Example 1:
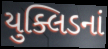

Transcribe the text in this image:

યુક્લિડનાં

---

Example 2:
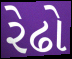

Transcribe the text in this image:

રેઢો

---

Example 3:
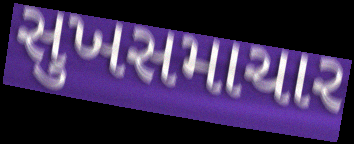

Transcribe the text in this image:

સુખસમાચાર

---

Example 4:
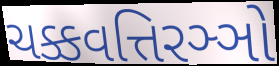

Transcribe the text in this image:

ચક્કવત્તિરઞ્ઞો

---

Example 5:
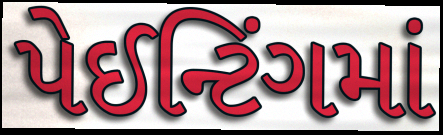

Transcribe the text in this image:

પેઈન્ટિંગમાં